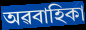
অৱবাহিকা